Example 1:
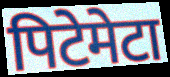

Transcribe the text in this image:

पिटेमेटा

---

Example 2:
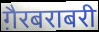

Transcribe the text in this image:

ग़ैरबराबरी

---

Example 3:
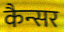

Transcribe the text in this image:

कैन्सर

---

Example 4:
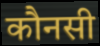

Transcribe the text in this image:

कौनसी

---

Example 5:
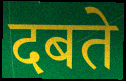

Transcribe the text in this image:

दबते